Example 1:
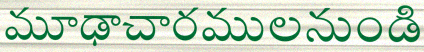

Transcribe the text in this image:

మూఢాచారములనుండి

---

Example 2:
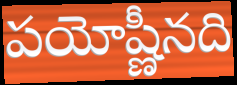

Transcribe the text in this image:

పయోష్ణీనది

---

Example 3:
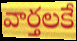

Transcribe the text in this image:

వార్తలకే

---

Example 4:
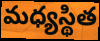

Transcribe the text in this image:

మధ్యస్థిత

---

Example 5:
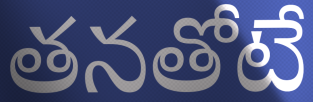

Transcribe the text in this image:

తనతోటే